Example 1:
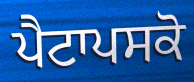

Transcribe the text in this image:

ਪੈਟਾਪਸਕੋ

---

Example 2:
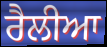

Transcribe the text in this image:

ਰੈਲੀਆ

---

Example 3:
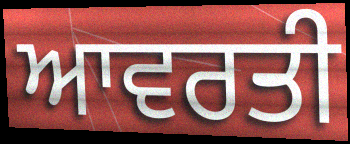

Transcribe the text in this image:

ਆਵਰਤੀ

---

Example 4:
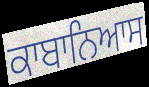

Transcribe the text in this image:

ਕਾਬਾਨਿਆਸ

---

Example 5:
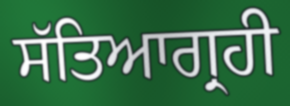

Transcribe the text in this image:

ਸੱਤਿਆਗ੍ਰਹੀ